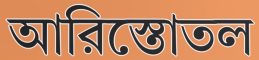
আরিস্তোতল